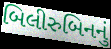
બિલીરુબિનનું